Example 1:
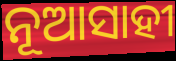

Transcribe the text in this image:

ନୂଆସାହୀ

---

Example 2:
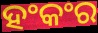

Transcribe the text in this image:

ହଂକଂର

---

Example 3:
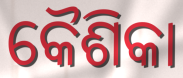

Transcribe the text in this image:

କୈଶିକା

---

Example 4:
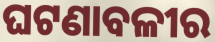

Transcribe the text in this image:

ଘଟଣାବଳୀର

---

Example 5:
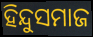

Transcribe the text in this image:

ହିନ୍ଦୁସମାଜ